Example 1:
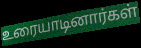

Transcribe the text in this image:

உரையாடினார்கள்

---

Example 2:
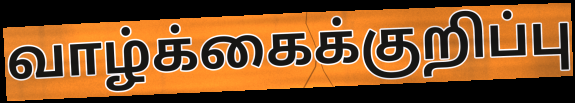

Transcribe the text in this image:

வாழ்க்கைக்குறிப்பு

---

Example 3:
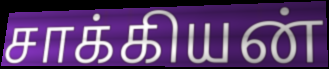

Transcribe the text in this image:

சாக்கியன்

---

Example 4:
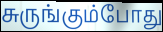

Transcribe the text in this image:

சுருங்கும்போது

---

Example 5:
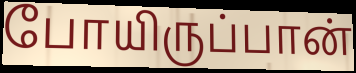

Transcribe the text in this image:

போயிருப்பான்